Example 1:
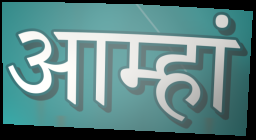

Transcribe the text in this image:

आम्हां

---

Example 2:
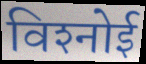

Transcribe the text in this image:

विश्नोई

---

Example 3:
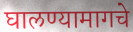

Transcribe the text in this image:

घालण्यामागचे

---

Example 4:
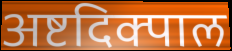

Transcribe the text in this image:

अष्टदिक्पाल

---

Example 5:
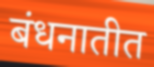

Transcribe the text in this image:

बंधनातीत